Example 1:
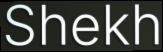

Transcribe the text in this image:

Shekh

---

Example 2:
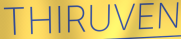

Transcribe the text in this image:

THIRUVEN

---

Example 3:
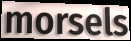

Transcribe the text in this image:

morsels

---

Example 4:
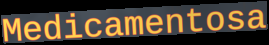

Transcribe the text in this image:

Medicamentosa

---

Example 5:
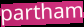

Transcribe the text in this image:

partham